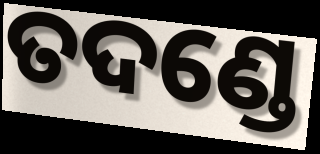
ତଦଣ୍ଡେ